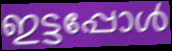
ഇട്ടപ്പോൾ